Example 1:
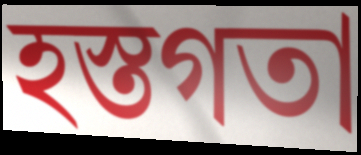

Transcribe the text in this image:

হস্তগতা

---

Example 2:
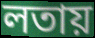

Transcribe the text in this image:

লতায়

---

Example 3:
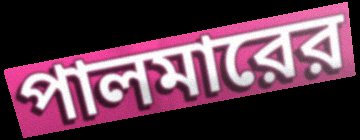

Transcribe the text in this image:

পালমারের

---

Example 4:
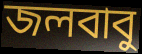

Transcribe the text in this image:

জলবাবু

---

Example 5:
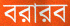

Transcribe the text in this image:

বরারব